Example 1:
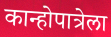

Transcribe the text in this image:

कान्होपात्रेला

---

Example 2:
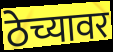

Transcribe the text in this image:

ठेच्यावर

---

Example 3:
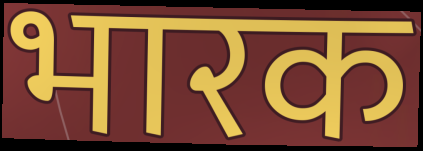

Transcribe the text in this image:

भारक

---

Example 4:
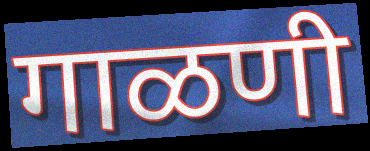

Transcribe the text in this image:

गाळणी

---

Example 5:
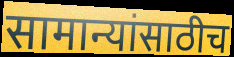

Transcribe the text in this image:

सामान्यांसाठीच